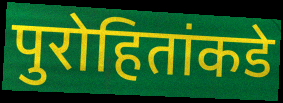
पुरोहितांकडे